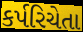
કર્પરિચેતા